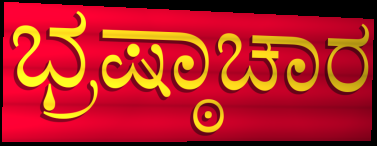
ಭ್ರಷ್ಠಾಚಾರ